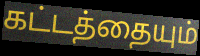
கட்டத்தையும்